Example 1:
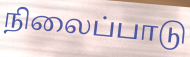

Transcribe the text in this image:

நிலைப்பாடு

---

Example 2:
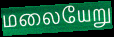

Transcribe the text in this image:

மலையேறு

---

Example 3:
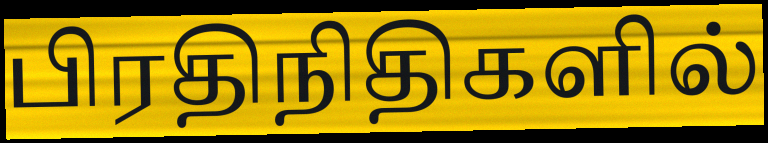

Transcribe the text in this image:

பிரதிநிதிகளில்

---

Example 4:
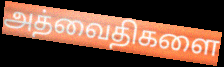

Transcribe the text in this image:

அத்வைதிகளை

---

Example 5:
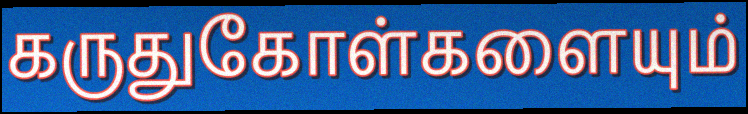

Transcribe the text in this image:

கருதுகோள்களையும்